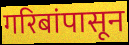
गरिबांपासून